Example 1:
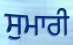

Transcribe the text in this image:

ਸੁਮਾਰੀ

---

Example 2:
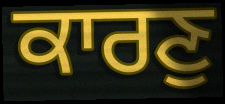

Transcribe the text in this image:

ਕਾਰਣੁ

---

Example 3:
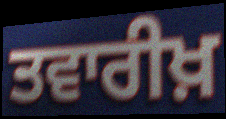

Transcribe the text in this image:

ਤਵਾਰੀਖ਼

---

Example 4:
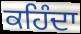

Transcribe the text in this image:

ਕਹਿੰਦਾ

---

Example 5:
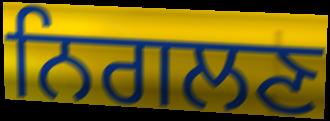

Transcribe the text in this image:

ਨਿਗਲਣ